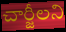
చార్జీలని